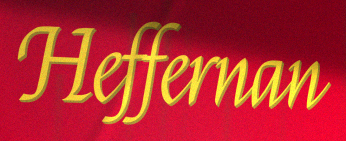
Heffernan